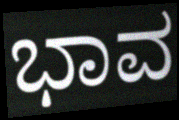
ಭಾವ